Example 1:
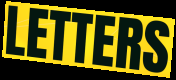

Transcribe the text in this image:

LETTERS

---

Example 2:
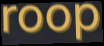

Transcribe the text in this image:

roop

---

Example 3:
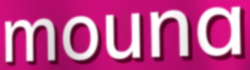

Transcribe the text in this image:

mouna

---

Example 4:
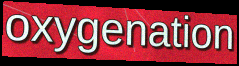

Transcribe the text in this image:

oxygenation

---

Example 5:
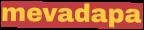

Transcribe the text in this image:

mevadapa